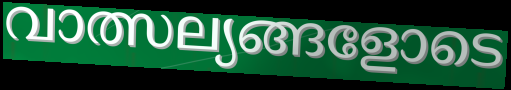
വാത്സല്യങ്ങളോടെ